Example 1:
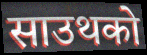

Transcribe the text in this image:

साउथको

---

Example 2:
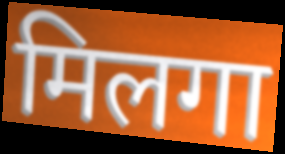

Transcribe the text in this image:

मिलगा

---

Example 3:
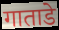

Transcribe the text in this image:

गाताडे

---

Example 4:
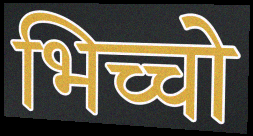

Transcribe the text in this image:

भिच्चो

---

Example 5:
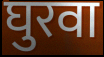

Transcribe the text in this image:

घुरवा